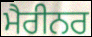
ਮੈਰੀਨਰ